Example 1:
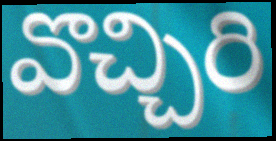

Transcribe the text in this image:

వొచ్చిరి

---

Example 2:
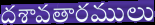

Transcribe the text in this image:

దశావతారములు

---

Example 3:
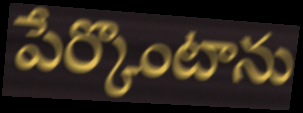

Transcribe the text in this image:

పేర్కొంటాను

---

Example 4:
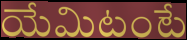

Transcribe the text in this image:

యేమిటంటే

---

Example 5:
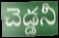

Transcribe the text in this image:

చెడ్డనీ